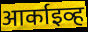
आर्काइव्ह